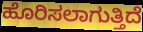
ಹೊರಿಸಲಾಗುತ್ತಿದೆ